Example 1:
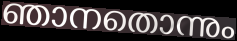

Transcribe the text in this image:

ഞാനതൊന്നും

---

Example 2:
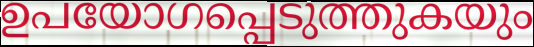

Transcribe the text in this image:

ഉപയോഗപ്പെടുത്തുകയും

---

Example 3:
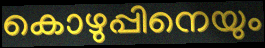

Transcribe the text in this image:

കൊഴുപ്പിനെയും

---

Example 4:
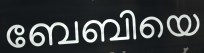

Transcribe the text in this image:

ബേബിയെ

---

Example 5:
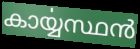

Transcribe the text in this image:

കാൎയ്യസ്ഥൻ